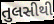
તુલસીથી